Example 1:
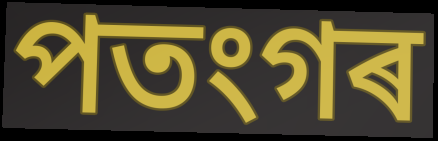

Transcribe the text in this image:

পতংগৰ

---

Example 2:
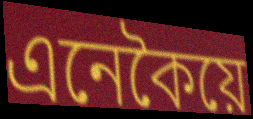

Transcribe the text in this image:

এনেকৈয়ে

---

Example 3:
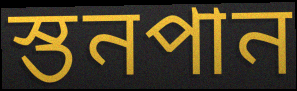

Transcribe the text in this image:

স্তনপান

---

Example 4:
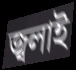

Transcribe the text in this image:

জ্বলাই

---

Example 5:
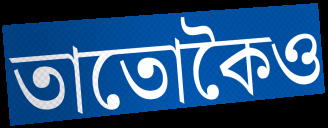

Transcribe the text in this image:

তাতোকৈও